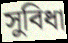
সুবিধা